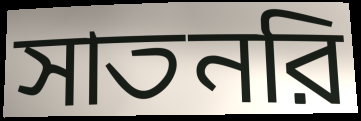
সাতনরি